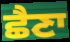
ਛੈਣਾ